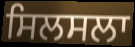
ਸਿਲਸਲਾ